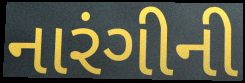
નારંગીની